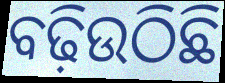
ବଢ଼ିଉଠିଛି